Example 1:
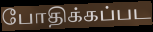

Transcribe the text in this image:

போதிக்கப்பட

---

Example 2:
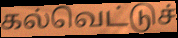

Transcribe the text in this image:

கல்வெட்டுச்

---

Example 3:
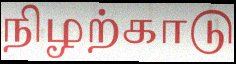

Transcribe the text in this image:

நிழற்காடு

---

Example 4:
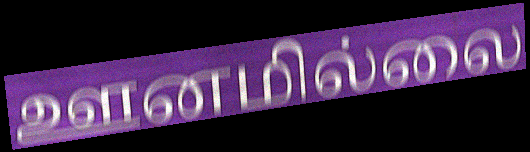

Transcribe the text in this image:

ஊனமில்லை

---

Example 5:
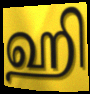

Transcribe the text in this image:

ஹி